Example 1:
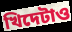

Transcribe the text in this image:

খিদেটাও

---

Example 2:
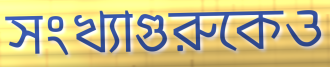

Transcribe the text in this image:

সংখ্যাগুরুকেও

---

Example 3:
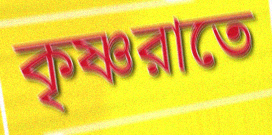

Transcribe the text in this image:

কৃষ্ণরাতে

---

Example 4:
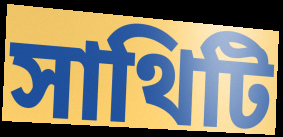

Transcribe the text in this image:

সাথিটি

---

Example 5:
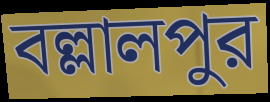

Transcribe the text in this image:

বল্লালপুর